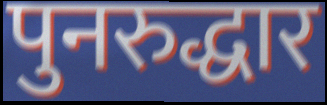
पुनरुद्धार